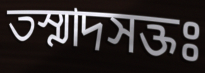
তস্মাদসক্তঃ